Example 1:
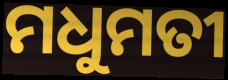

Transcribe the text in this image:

ମଧୁମତୀ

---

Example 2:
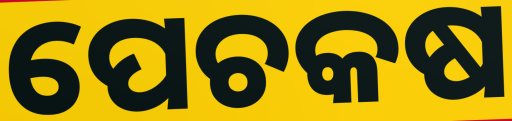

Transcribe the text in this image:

ପେଚକଷ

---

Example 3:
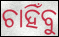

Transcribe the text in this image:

ଚାହିଁବୁ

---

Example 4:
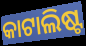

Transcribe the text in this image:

କାଟାଲିଷ୍ଟ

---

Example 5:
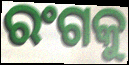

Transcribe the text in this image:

ରଂଗକୁ